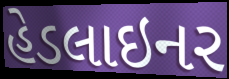
હેડલાઇનર